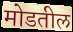
मोडतील